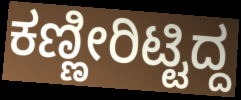
ಕಣ್ಣೀರಿಟ್ಟಿದ್ದ